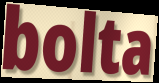
bolta